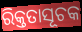
ରିକ୍ତତାସୂଚକ